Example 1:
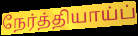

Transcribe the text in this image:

நேர்த்தியாய்ப்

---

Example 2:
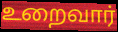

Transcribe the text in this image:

உறைவார்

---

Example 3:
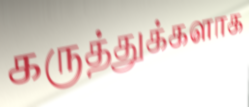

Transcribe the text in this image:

கருத்துக்களாக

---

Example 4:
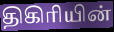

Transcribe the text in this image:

திகிரியின்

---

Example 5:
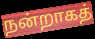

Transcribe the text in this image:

நன்றாகத்